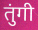
तुंगी